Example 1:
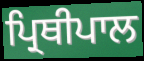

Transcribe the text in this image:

ਪ੍ਰਿਥੀਪਾਲ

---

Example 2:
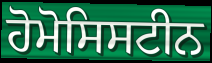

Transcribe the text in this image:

ਹੋਮੋਸਿਸਟੀਨ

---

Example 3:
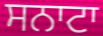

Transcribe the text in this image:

ਸਨਾਟਾ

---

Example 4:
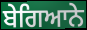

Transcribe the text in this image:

ਬੇਗਿਆਨੇ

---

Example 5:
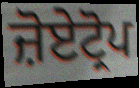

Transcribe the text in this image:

ਜ਼ੋਏਟ੍ਰੋਪ